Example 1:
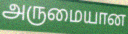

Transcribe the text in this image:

அருமையான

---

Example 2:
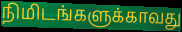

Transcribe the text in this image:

நிமிடங்களுக்காவது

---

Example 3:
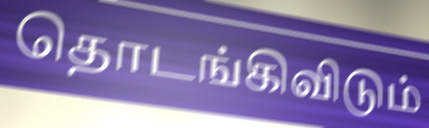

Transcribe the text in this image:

தொடங்கிவிடும்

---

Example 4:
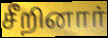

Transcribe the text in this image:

சீறினார்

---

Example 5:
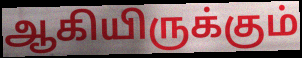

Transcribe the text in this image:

ஆகியிருக்கும்